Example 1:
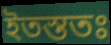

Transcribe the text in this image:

ইতস্ততঃ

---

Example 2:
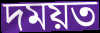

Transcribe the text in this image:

দময়ত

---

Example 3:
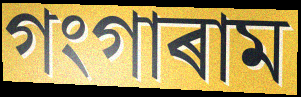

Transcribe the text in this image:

গংগাৰাম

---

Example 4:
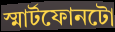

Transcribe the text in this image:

স্মাৰ্টফোনটো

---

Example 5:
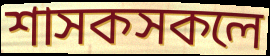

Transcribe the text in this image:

শাসকসকলে